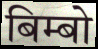
बिम्बो